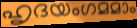
ഹൃദയംഗമമാം